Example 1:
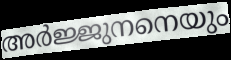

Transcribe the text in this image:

അർജ്ജുനനെയും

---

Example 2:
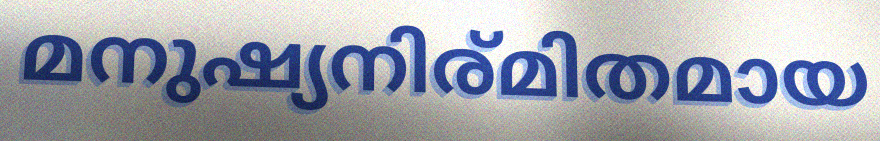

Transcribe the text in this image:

മനുഷ്യനിര്മിതമായ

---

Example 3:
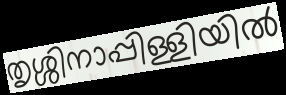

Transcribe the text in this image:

തൃശ്ശിനാപ്പിള്ളിയിൽ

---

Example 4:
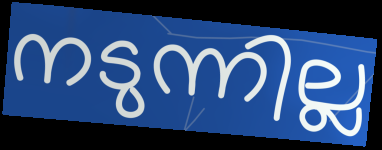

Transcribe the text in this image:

നടുന്നില്ല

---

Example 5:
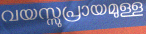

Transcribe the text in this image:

വയസ്സുപ്രായമുള്ള